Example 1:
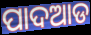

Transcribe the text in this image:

ପାଦଆଡ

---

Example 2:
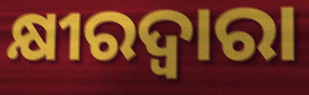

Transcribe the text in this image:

କ୍ଷୀରଦ୍ଵାରା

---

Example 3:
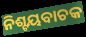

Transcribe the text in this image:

ନିଶ୍ଟୟବାଚକ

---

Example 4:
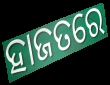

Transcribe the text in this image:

ହାଜତରେ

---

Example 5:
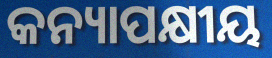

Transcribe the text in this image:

କନ୍ୟାପକ୍ଷୀୟ